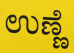
ಉಣ್ಣೆ